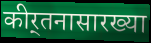
कीर्तनासारख्या